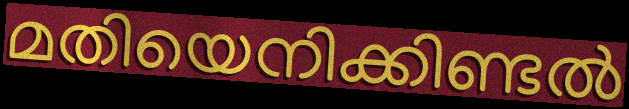
മതിയെനിക്കിണ്ടൽ